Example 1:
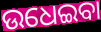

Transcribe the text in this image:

ଉଧେଇବା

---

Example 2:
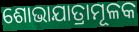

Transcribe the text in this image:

ଶୋଭାଯାତ୍ରାମୂଳକ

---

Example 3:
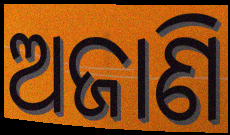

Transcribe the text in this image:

ଅଜାଣି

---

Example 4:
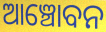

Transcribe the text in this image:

ଆଞ୍ଚୋବନ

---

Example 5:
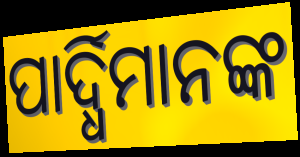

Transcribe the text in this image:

ପାର୍ଦ୍ଧିମାନଙ୍କ